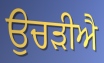
ਉਚੜੀਐ